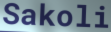
Sakoli